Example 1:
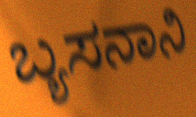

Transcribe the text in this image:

ಬ್ಯಸನಾನಿ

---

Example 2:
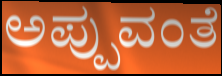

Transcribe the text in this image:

ಅಪ್ಪುವಂತೆ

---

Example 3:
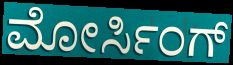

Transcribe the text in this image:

ಮೋರ್ಸಿಂಗ್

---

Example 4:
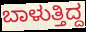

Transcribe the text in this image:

ಬಾಳುತ್ತಿದ್ದ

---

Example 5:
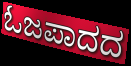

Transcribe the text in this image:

ಓಜಪಾದದ